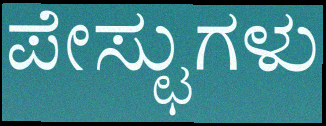
ಪೇಸ್ಟುಗಳು